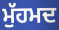
ਮੁੱਹਮਦ